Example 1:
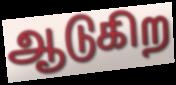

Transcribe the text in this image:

ஆடுகிற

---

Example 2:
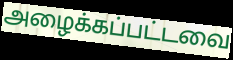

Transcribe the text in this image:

அழைக்கப்பட்டவை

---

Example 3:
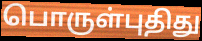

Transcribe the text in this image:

பொருள்புதிது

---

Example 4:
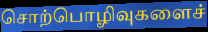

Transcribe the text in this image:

சொற்பொழிவுகளைச்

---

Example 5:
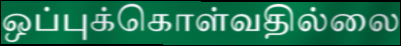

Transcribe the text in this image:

ஒப்புக்கொள்வதில்லை